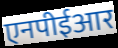
एनपीईआर